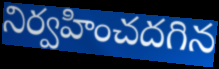
నిర్వహించదగిన